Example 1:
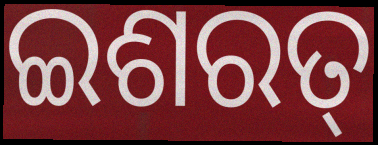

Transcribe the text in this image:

ଇଶରତ୍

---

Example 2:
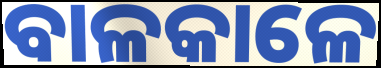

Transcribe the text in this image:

ବାଳକାଳେ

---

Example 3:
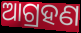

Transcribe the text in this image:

ଆଗ୍ରହଣ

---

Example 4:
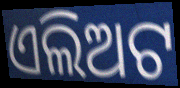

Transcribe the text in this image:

ଏଲିଅଟ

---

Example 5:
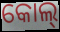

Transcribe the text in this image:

କୋଲ୍